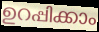
ഉറപ്പിക്കാം